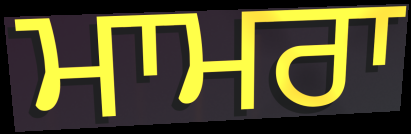
ਮਾਮਰਾ